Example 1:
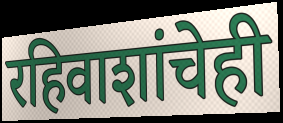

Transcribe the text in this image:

रहिवाशांचेही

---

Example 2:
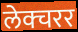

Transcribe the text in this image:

लेक्चरर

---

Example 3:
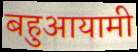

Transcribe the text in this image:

बहुआयामी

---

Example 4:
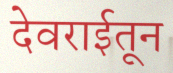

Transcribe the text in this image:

देवराईतून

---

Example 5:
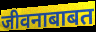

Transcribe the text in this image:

जीवनाबाबत